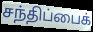
சந்திப்பைக்